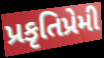
પ્રકૃતિપ્રેમી